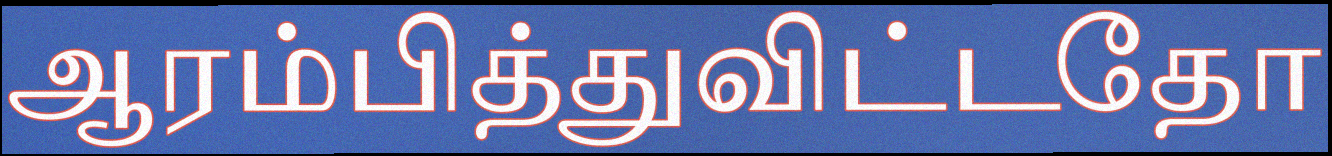
ஆரம்பித்துவிட்டதோ